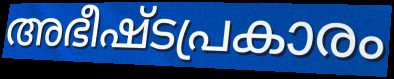
അഭീഷ്ടപ്രകാരം